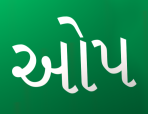
ઓપ